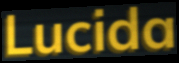
Lucida